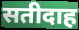
सतीदाह